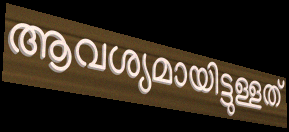
ആവശ്യമായിട്ടുള്ളത്